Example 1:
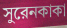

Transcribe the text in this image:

সুরেনকাকা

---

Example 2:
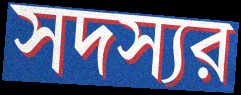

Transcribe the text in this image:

সদস্যর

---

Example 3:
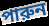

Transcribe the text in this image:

পারুন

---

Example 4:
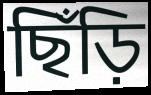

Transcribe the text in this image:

ছিঁড়ি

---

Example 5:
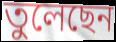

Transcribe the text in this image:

তুলেছেন